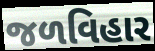
જળવિહાર